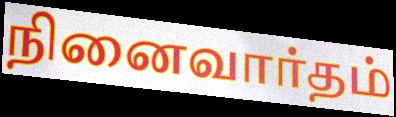
நினைவார்தம்